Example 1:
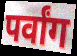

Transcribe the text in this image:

पर्वांग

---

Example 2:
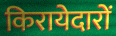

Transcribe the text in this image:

किरायेदारों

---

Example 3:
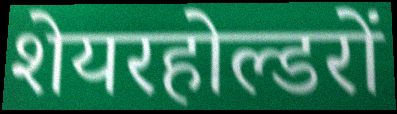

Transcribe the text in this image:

शेयरहोल्डरों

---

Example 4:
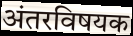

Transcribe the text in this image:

अंतरविषयक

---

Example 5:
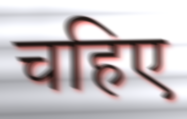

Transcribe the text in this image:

चहिए